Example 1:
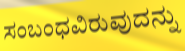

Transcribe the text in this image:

ಸಂಬಂಧವಿರುವುದನ್ನು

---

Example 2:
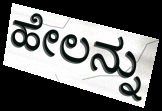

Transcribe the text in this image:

ಹೇಲನ್ನು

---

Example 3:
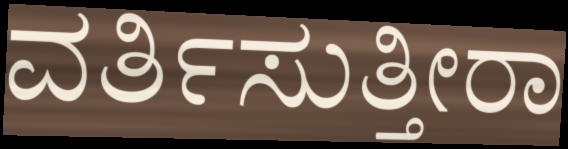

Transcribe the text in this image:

ವರ್ತಿಸುತ್ತೀರಾ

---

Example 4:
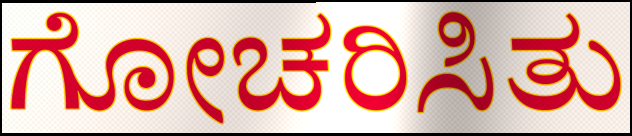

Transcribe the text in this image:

ಗೋಚರಿಸಿತು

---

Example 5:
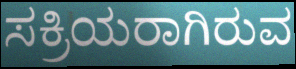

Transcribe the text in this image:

ಸಕ್ರಿಯರಾಗಿರುವ